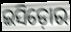
ଇସିଡ଼ୋର